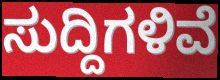
ಸುದ್ದಿಗಳಿವೆ